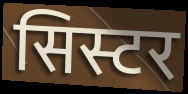
सिस्टर